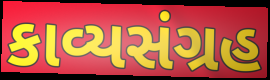
કાવ્યસંગ્રહ